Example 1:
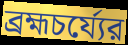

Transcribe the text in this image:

ব্রহ্মচর্য্যের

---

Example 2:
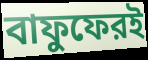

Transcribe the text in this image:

বাফুফেরই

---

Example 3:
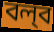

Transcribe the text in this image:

বল্‌ব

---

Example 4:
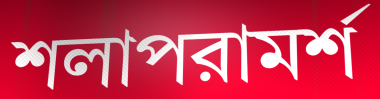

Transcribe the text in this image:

শলাপরামর্শ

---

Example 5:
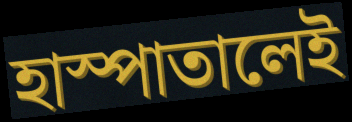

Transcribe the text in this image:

হাস্পাতালেই